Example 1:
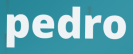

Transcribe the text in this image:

pedro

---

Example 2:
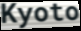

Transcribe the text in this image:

Kyoto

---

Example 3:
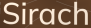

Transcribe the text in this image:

Sirach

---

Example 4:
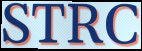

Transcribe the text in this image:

STRC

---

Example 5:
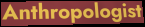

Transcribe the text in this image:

Anthropologist